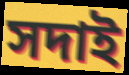
সদাই